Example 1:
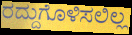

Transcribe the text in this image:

ರದ್ದುಗೊಳಿಸಲಿಲ್ಲ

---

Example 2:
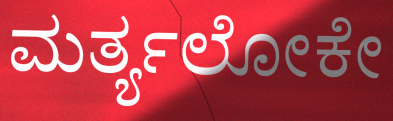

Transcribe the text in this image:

ಮರ್ತ್ಯಲೋಕೇ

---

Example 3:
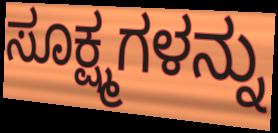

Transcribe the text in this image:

ಸೂಕ್ಷ್ಮಗಳನ್ನು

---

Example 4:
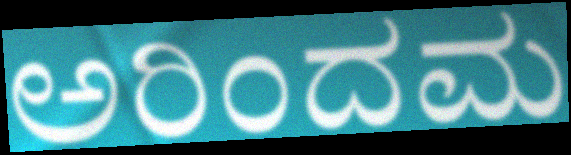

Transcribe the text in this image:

ಅರಿಂದಮ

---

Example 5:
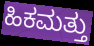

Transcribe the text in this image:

ಹಿಕಮತ್ತು